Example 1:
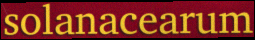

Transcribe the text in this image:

solanacearum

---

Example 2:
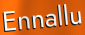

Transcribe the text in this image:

Ennallu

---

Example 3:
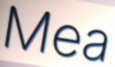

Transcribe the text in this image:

Mea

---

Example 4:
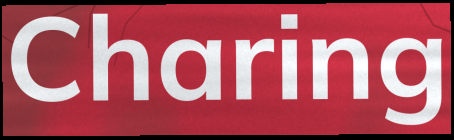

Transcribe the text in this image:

Charing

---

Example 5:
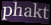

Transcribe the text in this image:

phakt